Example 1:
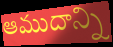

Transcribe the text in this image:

ఆముదాన్ని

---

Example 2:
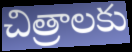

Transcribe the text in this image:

చిత్రాలకు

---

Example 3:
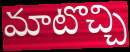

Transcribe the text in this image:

మాటొచ్చి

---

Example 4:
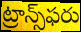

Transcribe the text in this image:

ట్రాన్స్‌ఫరు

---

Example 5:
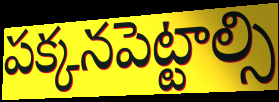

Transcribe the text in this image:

పక్కనపెట్టాల్సి